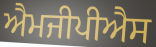
ਐਮਜੀਪੀਐਸ